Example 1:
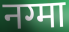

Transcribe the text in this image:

नग्मा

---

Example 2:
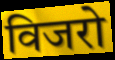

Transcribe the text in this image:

विजरो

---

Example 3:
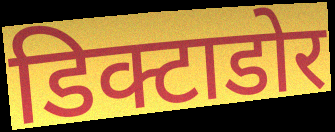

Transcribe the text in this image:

डिक्टाडोर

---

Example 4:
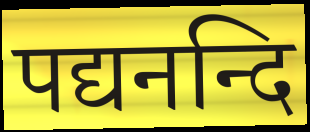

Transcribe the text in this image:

पद्यनन्दि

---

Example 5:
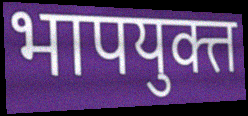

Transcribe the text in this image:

भापयुक्त